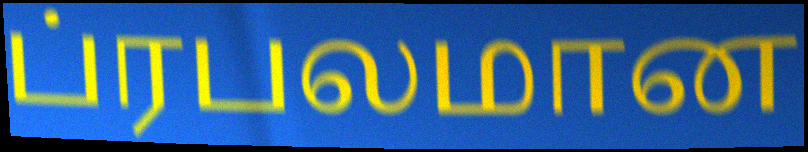
ப்ரபலமான